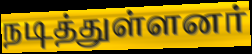
நடித்துள்ளனர்